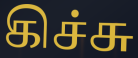
கிச்சு